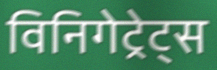
विनिगेट्रेट्स